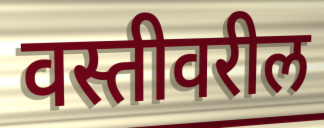
वस्तीवरील